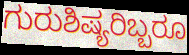
ಗುರುಶಿಷ್ಯರಿಬ್ಬರೂ